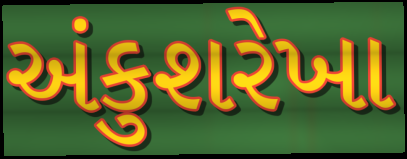
અંકુશરેખા